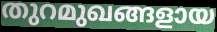
തുറമുഖങ്ങളായ